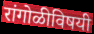
रांगोळीविषयी